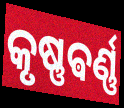
କୃଷ୍ଣଵର୍ଣ୍ଣ